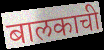
बालकाची